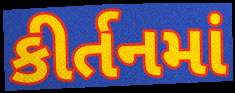
કીર્તનમાં